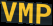
VMP